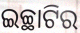
ଇଚ୍ଛାଟିର